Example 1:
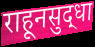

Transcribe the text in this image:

राहूनसुद्धा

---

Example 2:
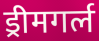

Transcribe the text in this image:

ड्रीमगर्ल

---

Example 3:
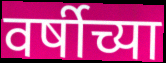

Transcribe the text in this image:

वर्षीच्या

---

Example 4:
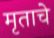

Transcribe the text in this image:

मृताचे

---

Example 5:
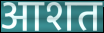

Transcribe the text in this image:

आशत